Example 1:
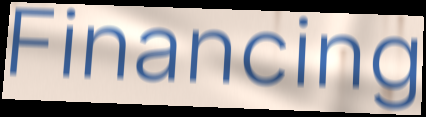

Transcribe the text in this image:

Financing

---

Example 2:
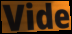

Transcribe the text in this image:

Vide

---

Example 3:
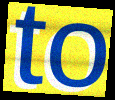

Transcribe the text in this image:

to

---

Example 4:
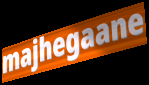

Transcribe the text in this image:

majhegaane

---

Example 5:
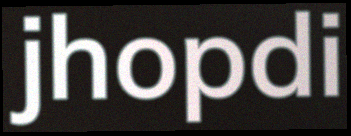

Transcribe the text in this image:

jhopdi